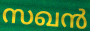
സഖൻ